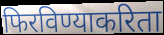
फिरविण्याकरिता